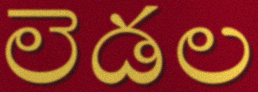
లెడల